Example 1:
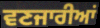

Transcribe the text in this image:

ਵਣਜਾਰੀਆਂ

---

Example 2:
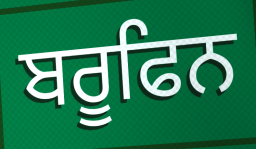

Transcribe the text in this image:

ਬਰੂਫਿਨ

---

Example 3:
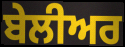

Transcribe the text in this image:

ਬੇਲੀਅਰ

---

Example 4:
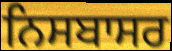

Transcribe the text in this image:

ਨਿਸਬਾਸਰ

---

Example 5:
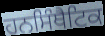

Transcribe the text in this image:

ਹਨਸਿੰਥੈਟਿਕ